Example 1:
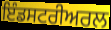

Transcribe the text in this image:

ਇੰਡਸਟਰੀਅਰਲ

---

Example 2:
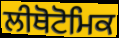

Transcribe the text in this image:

ਲੀਥੋਟੋਮਿਕ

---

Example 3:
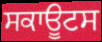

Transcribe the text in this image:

ਸਕਾਊਟਸ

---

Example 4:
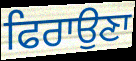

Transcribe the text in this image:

ਫਿਰਾਉਣਾ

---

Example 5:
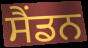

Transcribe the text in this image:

ਸੈਂਡਨ